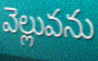
వెల్లువను